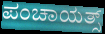
ಪಂಚಾಯತ್ಸ್